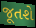
જૂતશે